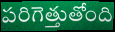
పరిగెత్తుతోంది